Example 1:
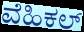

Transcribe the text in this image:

ವೆಹಿಕಲ್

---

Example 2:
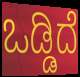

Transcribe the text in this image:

ಒಡ್ಡಿದೆ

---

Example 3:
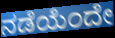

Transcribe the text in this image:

ನಡೆಯೆಂದೇ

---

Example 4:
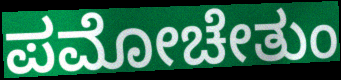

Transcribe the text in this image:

ಪಮೋಚೇತುಂ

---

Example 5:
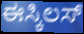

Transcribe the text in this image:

ಈಸ್ಕಿಲಸ್